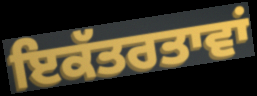
ਇਕੱਤਰਤਾਵਾਂ